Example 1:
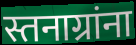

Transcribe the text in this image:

स्तनाग्रांना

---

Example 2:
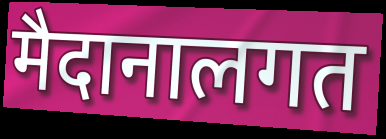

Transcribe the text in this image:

मैदानालगत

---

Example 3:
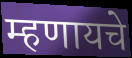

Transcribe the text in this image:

म्हणायचे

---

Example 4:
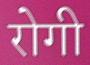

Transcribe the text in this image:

रोगी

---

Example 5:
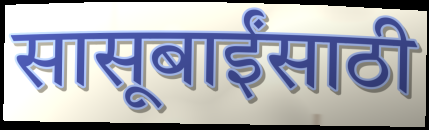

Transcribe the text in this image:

सासूबाईंसाठी